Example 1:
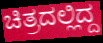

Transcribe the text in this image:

ಚಿತ್ರದಲ್ಲಿದ್ದ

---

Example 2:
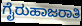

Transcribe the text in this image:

ಗೈರುಹಾಜರಾತಿ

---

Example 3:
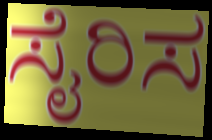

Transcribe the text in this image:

ಸೈರಿಸ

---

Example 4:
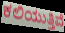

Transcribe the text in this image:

ಕಲಿಯುತ್ತಿವೆ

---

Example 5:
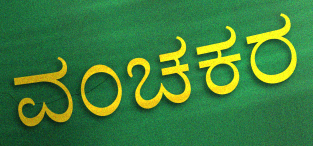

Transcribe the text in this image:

ವಂಚಕರ